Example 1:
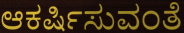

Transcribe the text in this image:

ಆಕರ್ಷಿಸುವಂತೆ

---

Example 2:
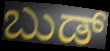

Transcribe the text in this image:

ಬುಡ್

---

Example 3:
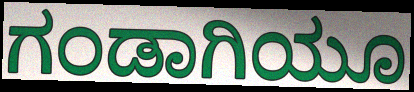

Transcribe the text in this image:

ಗಂಡಾಗಿಯೂ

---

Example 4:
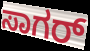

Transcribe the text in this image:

ಸಾಗರ್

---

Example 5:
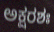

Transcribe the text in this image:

ಅಕ್ಷರಶಃ